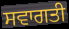
ਸਵਾਗਤੀ